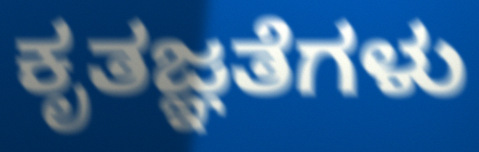
ಕೃತಜ್ಞತೆಗಳು